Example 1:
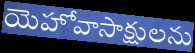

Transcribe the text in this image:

యెహోవాసాక్షులను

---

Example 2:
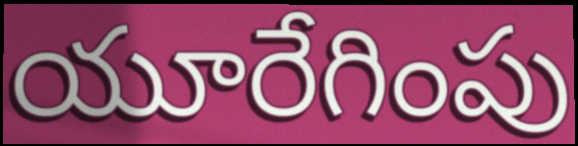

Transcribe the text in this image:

యూరేగింపు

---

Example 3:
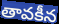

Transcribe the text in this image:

తావకీన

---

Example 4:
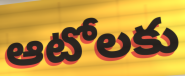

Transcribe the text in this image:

ఆటోలకు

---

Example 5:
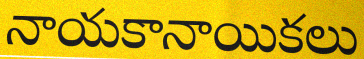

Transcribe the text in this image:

నాయకానాయికలు